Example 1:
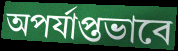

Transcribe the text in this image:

অপর্যাপ্তভাবে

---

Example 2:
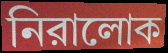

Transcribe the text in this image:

নিরালোক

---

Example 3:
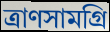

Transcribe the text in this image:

ত্রাণসামগ্রি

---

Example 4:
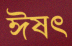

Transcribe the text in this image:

ঈষত্‍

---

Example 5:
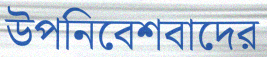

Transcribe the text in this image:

উপনিবেশবাদের